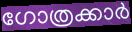
ഗോത്രക്കാർ